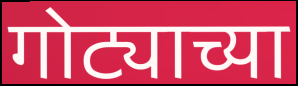
गोट्याच्या